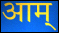
आम्